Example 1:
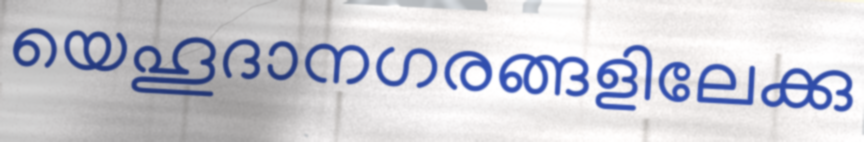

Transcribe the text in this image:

യെഹൂദാനഗരങ്ങളിലേക്കു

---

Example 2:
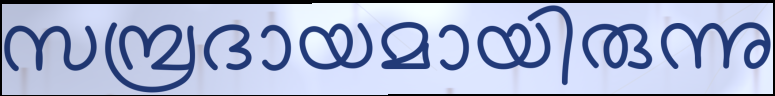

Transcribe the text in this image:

സമ്പ്രദായമായിരുന്നു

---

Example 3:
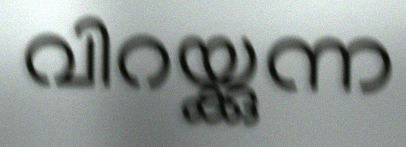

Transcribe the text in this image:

വിറയ്ക്കുന്ന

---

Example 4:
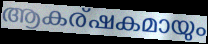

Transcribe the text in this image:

ആകര്ഷകമായും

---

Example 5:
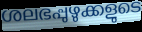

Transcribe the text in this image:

ശലഭപ്പുഴുക്കളുടെ